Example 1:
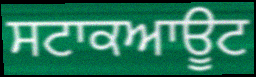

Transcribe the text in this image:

ਸਟਾਕਆਊਟ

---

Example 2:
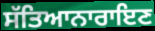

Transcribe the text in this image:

ਸੱਤਿਆਨਾਰਾਇਣ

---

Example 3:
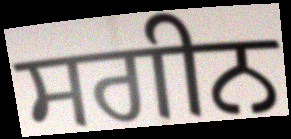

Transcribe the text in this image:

ਸਗੀਨ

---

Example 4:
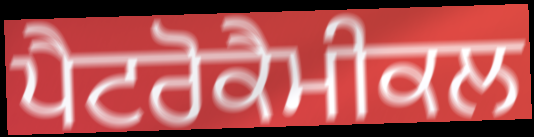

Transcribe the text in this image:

ਪੈਟਰੋਕੈਮੀਕਲ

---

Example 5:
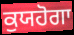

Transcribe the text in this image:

ਕੁਯਹੋਗਾ